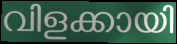
വിളക്കായി